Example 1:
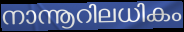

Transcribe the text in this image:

നാന്നൂറിലധികം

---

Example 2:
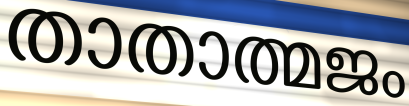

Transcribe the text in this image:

താതാത്മജം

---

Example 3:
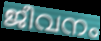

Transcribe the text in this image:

ജീവനം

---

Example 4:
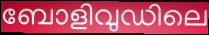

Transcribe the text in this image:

ബോളിവുഡിലെ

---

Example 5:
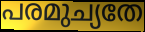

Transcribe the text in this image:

പരമുച്യതേ